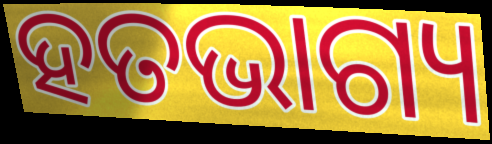
ହତଭାଗ୍ୟ